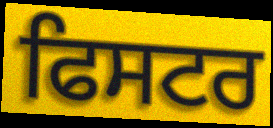
ਫਿਸਟਰ